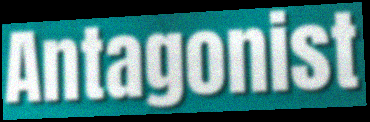
Antagonist